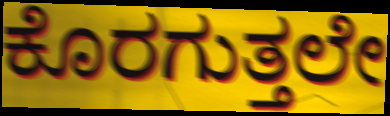
ಕೊರಗುತ್ತಲೇ